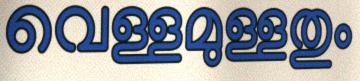
വെള്ളമുള്ളതും